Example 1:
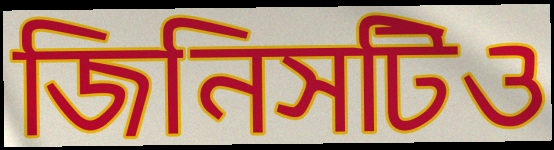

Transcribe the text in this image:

জিনিসটিও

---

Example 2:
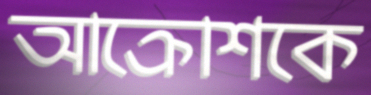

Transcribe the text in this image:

আক্রোশকে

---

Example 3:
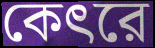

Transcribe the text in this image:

কেৎরে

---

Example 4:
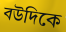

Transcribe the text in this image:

বউদিকে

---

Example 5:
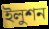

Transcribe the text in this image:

ইলুশন